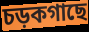
চড়কগাছে